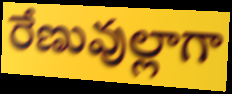
రేణువుల్లాగా